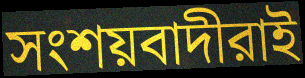
সংশয়বাদীরাই